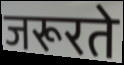
जरूरते